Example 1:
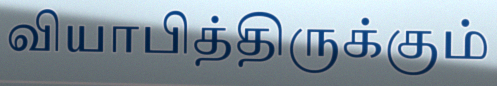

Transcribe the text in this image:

வியாபித்திருக்கும்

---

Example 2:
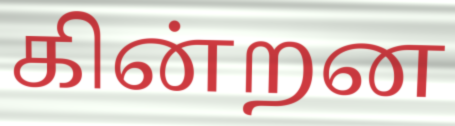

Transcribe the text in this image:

கின்றன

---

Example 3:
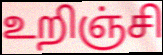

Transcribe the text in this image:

உறிஞ்சி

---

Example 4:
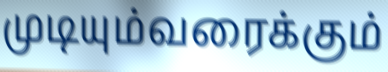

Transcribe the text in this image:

முடியும்வரைக்கும்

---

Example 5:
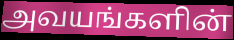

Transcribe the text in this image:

அவயங்களின்